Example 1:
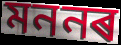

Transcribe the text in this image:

মননৰ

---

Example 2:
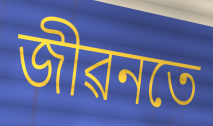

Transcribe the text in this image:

জীৱনতে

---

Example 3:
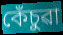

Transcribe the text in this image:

কেঁচুৱা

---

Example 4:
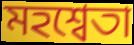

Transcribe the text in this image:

মহশ্বেতা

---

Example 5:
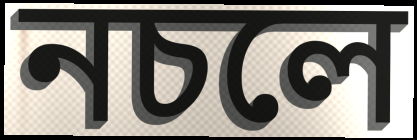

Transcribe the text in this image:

নচলে